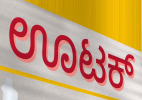
ಊಟಕ್